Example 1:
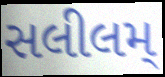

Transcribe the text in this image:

સલીલમ્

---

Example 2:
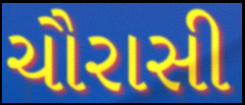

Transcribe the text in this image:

ચૌરાસી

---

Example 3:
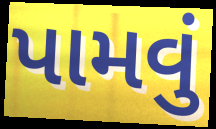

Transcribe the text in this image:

પામવું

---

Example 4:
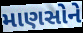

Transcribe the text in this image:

માણસોને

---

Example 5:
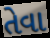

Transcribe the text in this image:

તેવા